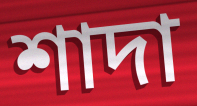
শাদা